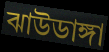
ঝাউডাঙ্গা